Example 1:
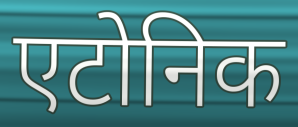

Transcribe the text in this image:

एटोनिक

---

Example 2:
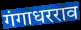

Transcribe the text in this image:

गंगाधरराव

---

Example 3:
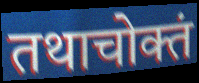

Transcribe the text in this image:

तथाचोक्तं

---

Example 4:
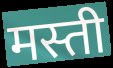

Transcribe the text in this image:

मस्‍ती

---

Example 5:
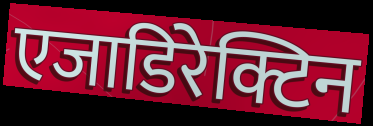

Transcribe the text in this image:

एजाडिरेक्टिन